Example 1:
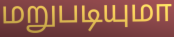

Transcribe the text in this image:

மறுபடியுமா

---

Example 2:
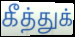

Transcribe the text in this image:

கீத்துக்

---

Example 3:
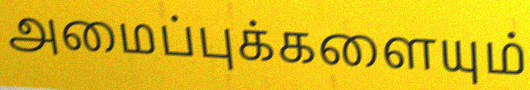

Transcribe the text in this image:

அமைப்புக்களையும்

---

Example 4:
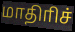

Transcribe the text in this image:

மாதிரிச்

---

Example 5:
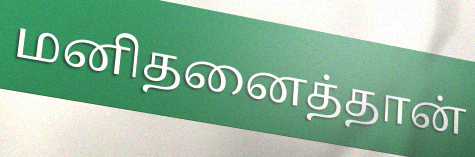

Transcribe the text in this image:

மனிதனைத்தான்